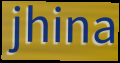
jhina